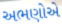
અભણોએ